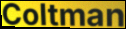
Coltman